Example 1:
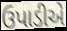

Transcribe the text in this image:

ઉપાડીએ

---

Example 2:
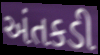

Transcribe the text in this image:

અંતકડી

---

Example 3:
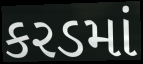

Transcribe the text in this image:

કરડમાં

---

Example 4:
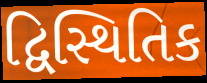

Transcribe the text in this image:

દ્વિસ્થિતિક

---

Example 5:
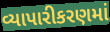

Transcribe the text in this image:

વ્યાપારીકરણમાં